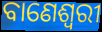
ବାଣେଶ୍ୱରୀ